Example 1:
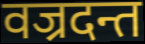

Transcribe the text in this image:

वज्रदन्त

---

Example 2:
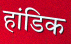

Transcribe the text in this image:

हांडिक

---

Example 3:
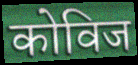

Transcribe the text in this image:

कोविज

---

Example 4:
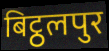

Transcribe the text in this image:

बिट्ठलपुर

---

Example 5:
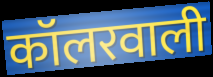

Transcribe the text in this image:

कॉलरवाली